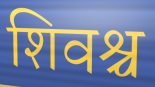
शिवश्च